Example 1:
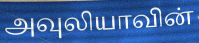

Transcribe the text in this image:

அவுலியாவின்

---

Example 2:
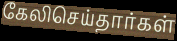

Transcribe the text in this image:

கேலிசெய்தார்கள்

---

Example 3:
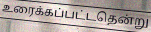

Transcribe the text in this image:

உரைக்கப்பட்டதென்று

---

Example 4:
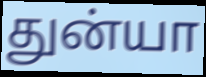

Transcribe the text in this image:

துன்யா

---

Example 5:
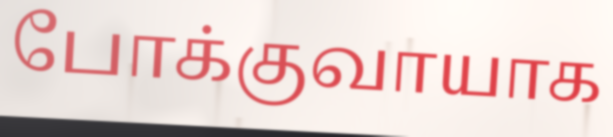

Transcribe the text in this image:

போக்குவாயாக